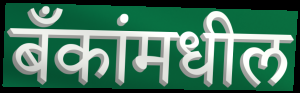
बँकांमधील